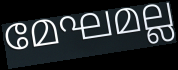
മേഘമല്ല